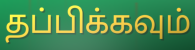
தப்பிக்கவும்